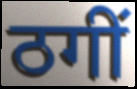
ठगीं